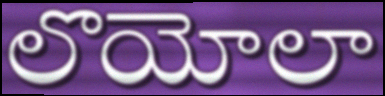
లొయోలా